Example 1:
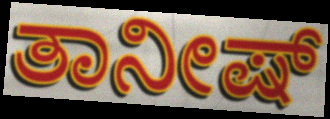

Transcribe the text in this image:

ತಾನೀಷ್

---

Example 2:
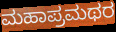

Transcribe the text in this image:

ಮಹಾಪ್ರಮಥರ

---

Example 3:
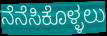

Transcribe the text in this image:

ನೆನೆಸಿಕೊಳ್ಳಲು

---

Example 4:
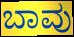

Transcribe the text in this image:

ಬಾವು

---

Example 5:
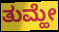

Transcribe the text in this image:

ತುಮ್ಹೇ